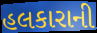
હલકારાની